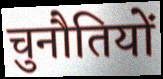
चुनौतियों